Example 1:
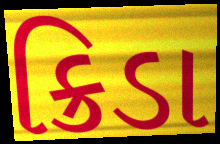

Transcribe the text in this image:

ક્રિડા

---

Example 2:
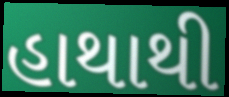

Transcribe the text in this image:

હાથાથી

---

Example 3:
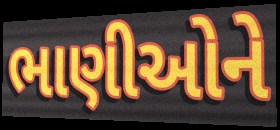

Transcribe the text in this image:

ભાણીઓને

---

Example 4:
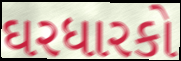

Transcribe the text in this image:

ઘરધારકો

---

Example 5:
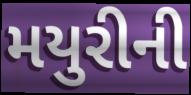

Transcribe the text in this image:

મયુરીની